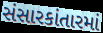
સંસારકાંતારમાં